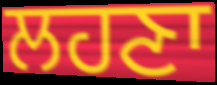
ਲਹਣਾ